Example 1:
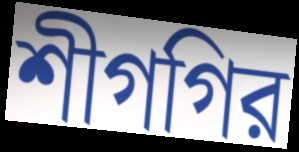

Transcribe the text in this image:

শীগগির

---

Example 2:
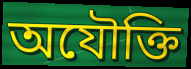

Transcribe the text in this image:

অযৌক্তি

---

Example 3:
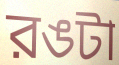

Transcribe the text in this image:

রঙটা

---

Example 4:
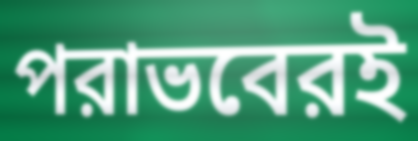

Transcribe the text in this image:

পরাভবেরই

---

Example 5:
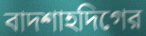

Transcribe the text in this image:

বাদশাহদিগের